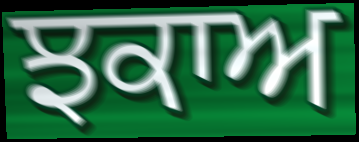
ਝਕਾਅ